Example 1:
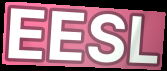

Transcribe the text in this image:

EESL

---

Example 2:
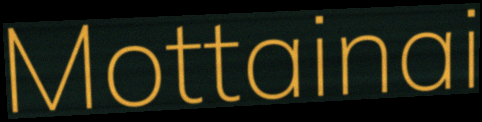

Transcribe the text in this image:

Mottainai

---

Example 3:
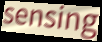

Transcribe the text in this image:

sensing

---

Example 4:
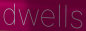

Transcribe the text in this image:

dwells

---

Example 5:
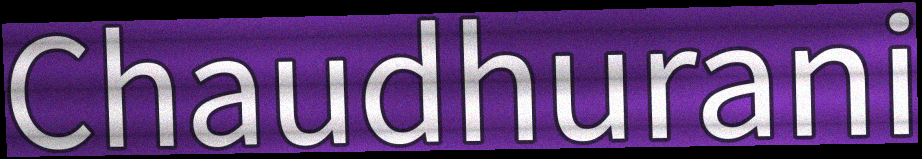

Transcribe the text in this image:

Chaudhurani